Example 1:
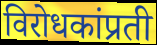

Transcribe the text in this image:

विरोधकांप्रती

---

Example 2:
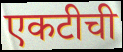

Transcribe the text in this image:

एकटीची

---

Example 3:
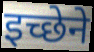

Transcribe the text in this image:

इच्छेने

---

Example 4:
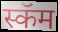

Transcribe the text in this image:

स्कॅम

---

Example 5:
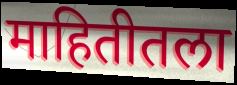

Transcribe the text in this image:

माहितीतला